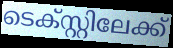
ടെക്സ്റ്റിലേക്ക്